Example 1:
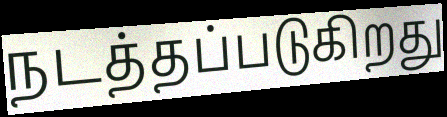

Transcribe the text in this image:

நடத்தப்படுகிறது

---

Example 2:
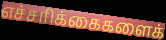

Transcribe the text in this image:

எச்சரிக்கைகளைக்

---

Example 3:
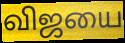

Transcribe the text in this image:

விஜயை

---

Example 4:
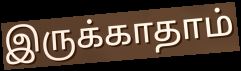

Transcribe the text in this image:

இருக்காதாம்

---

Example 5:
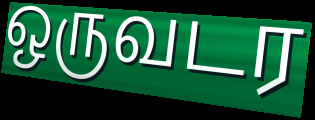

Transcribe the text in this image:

ஒருவடர